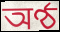
অণ্ঠ